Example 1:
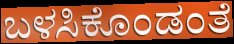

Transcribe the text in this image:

ಬಳಸಿಕೊಂಡಂತೆ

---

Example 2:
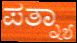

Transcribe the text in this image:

ಪತ್ನ್ಯಾ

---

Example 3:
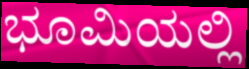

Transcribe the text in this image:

ಭೂಮಿಯಲ್ಲಿ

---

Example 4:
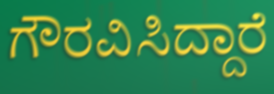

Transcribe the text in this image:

ಗೌರವಿಸಿದ್ದಾರೆ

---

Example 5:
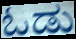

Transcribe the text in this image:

ಓಡು